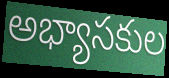
అభ్యాసకుల